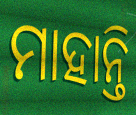
ମାହାନ୍ତି